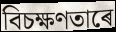
বিচক্ষণতাৰে